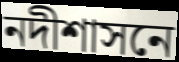
নদীশাসনে